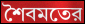
শৈবমতের